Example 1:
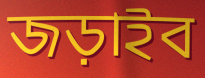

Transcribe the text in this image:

জড়াইব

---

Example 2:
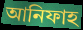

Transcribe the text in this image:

আনিফাহ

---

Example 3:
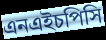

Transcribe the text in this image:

এনএইচপিসি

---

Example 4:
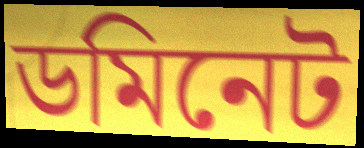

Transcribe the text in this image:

ডমিনেট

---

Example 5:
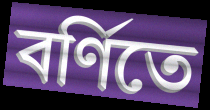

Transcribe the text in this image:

বর্ণিতে